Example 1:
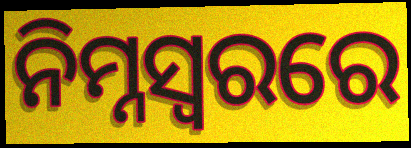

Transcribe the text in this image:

ନିମ୍ନସ୍ଵରରେ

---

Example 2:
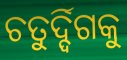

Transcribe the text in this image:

ଚତୁର୍ଦ୍ଦିଗକୁ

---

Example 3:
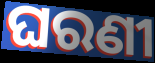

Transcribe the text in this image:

ଘରଣୀ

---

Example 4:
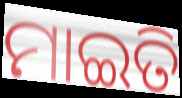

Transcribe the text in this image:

ମାଇତି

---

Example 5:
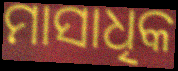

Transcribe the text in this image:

ମାସାଧିକ